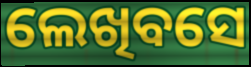
ଲେଖିବସେ